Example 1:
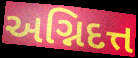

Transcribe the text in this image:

અગ્નિદત્ત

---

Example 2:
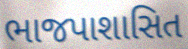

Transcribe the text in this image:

ભાજપાશાસિત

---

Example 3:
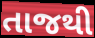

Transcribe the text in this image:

તાજથી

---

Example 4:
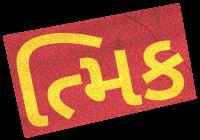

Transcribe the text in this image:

ત્મિક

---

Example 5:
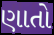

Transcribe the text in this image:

ણાતો